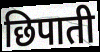
छिपाती